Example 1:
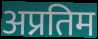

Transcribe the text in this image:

अप्रतिम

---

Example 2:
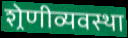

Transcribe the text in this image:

श्रेणीव्यवस्था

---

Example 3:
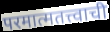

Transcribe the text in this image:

परमात्मतत्त्वाची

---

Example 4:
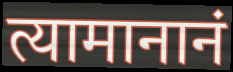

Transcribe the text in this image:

त्यामानानं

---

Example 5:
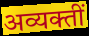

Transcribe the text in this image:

अव्यक्तीं